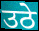
उठे